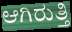
ಆಗಿರುತ್ತಿ